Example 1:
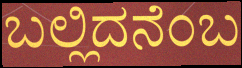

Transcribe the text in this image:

ಬಲ್ಲಿದನೆಂಬ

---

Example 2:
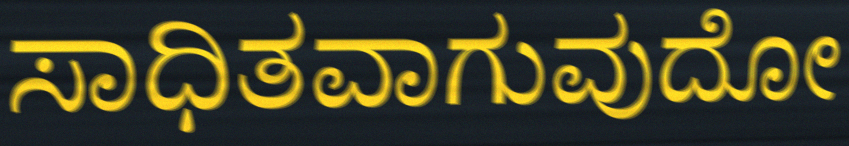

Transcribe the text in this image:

ಸಾಧಿತವಾಗುವುದೋ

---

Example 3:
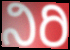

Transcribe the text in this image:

ನಿರಿ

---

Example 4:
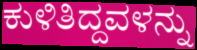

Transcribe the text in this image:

ಕುಳಿತಿದ್ದವಳನ್ನು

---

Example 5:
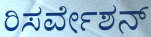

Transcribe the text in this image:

ರಿಸರ್ವೇಶನ್